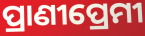
ପ୍ରାଣୀପ୍ରେମୀ